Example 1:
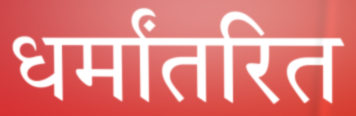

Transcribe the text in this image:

धर्मांतरित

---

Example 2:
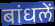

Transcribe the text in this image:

बांधलें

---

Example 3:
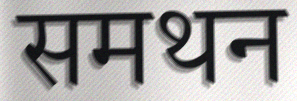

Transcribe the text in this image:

समथन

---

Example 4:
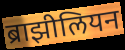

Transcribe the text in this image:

ब्राझीलियन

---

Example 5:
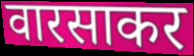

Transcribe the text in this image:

वारसाकर